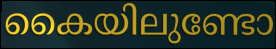
കൈയിലുണ്ടോ